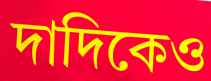
দাদিকেও